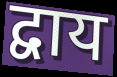
द्वाय